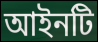
আইনটি